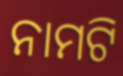
ନାମଟି